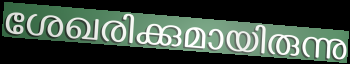
ശേഖരിക്കുമായിരുന്നു